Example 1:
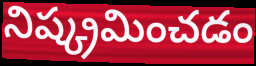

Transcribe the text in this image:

నిష్క్రమించడం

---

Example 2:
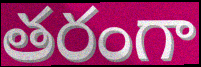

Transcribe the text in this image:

తరంగా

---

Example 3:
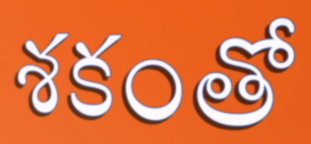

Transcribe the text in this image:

శకంతో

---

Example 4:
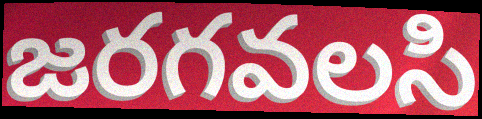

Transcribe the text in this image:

జరగవలసి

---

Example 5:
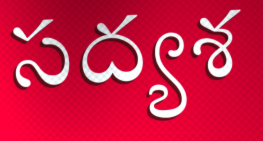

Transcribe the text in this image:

సద్యశ